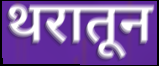
थरातून